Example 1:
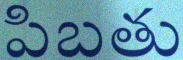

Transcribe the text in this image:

పిబతు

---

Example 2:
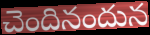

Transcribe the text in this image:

చెందినందున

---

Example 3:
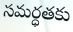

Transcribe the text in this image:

సమర్ధతకు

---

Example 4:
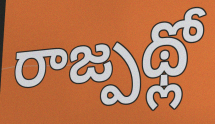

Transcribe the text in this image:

రాజ్పథ్లో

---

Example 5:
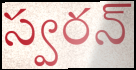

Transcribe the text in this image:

స్వరన్